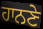
ਹਾਨਣੇ